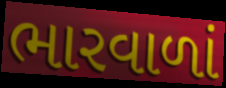
ભારવાળાં